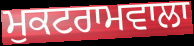
ਮੁਕਟਰਾਮਵਾਲਾ